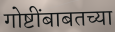
गोष्टींबाबतच्या